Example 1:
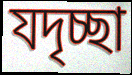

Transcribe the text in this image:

যদৃচ্ছা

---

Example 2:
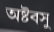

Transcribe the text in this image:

অষ্টবসু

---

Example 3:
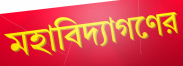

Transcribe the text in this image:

মহাবিদ্যাগণের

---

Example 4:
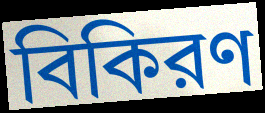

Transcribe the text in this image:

বিকিরণ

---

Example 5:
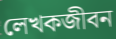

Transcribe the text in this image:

লেখকজীবন